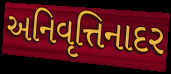
અનિવૃત્તિનાદર